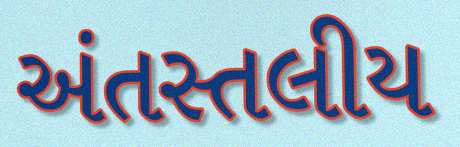
અંતસ્તલીય